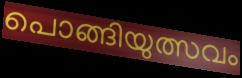
പൊങ്ങിയുത്സവം